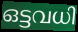
ഒട്ടവധി